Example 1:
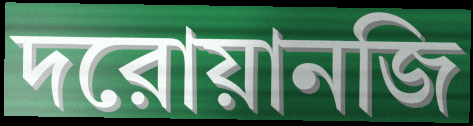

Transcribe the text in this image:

দরোয়ানজি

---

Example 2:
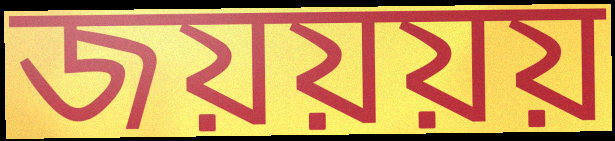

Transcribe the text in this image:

জয়য়য়য়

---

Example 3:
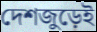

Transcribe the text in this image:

দেশজুড়েই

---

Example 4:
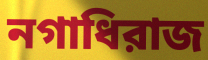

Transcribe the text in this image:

নগাধিরাজ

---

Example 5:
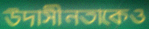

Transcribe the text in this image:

উদাসীনতাকেও